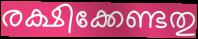
രക്ഷിക്കേണ്ടതു